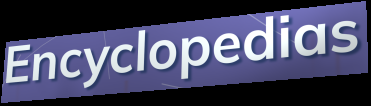
Encyclopedias